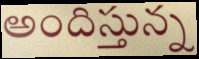
అందిస్తున్న